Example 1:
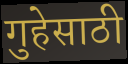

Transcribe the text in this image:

गुहेसाठी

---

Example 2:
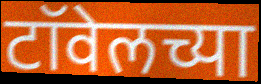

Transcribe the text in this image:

टॉवेलच्या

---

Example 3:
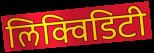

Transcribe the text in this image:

लिक्विडिटी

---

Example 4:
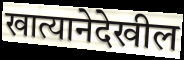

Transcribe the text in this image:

खात्यानेदेखील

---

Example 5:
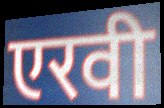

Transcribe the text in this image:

एरवी